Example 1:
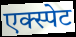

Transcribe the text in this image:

एक्स्पेट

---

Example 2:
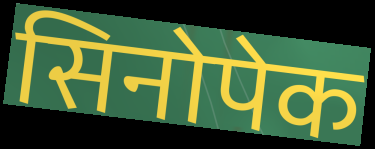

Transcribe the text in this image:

सिनोपेक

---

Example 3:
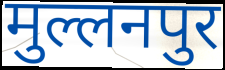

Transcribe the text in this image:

मुल्लनपुर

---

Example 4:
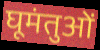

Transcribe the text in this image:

घूमंतुओं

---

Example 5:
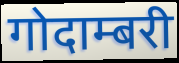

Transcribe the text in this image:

गोदाम्बरी